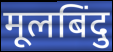
मूलबिंदु